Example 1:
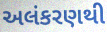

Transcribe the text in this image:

અલંકરણથી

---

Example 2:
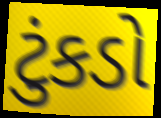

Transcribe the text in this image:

ટુંકડો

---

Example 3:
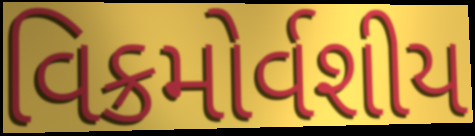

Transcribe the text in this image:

વિક્રમોર્વશીય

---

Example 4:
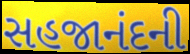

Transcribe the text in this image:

સહજાનંદની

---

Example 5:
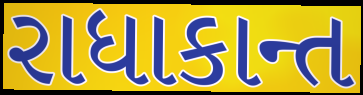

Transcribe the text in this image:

રાધાકાન્ત